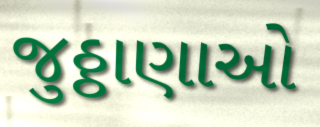
જુઠ્ઠાણાઓ